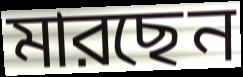
মারছেন